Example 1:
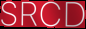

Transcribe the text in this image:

SRCD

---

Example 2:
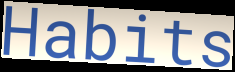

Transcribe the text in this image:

Habits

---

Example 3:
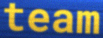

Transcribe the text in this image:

team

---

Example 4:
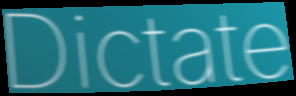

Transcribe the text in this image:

Dictate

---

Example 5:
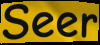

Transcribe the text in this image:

Seer